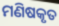
ମଣିଷକୃତ